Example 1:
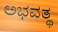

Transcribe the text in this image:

ಅಭವತ್ಥ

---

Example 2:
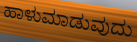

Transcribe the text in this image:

ಹಾಳುಮಾಡುವುದು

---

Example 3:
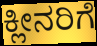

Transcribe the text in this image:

ಕ್ಲೀನರಿಗೆ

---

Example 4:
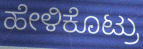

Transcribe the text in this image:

ಹೇಳಿಕೊಟ್ರು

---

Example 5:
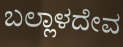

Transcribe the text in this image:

ಬಲ್ಲಾಳದೇವ